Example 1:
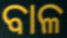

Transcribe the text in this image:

ବାଳ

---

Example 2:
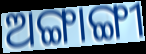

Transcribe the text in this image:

ଅଙ୍ଗାଙ୍ଗୀ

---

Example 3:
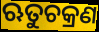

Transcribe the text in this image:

ଋତୁଚକ୍ରଣ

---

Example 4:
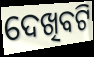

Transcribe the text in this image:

ଦେଖିବଟି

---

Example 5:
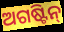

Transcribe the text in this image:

ଅଗଷ୍ଟିନ୍